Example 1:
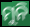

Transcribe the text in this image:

ମୁନି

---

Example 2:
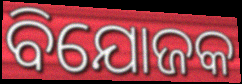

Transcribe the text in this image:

ବିଯୋଜକ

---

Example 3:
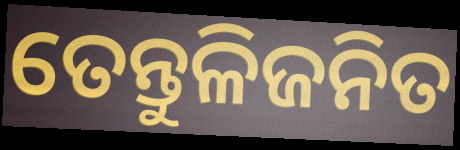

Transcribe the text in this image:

ତେନ୍ତୁଳିଜନିତ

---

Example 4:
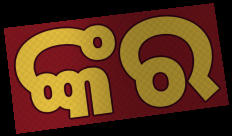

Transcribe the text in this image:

ଙ୍କର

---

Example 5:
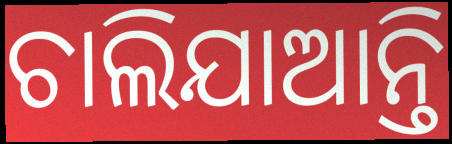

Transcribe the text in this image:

ଚାଲିଯାଆନ୍ତି